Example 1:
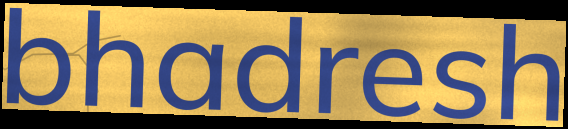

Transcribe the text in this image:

bhadresh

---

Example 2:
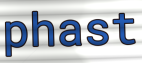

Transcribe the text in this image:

phast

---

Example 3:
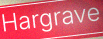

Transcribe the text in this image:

Hargrave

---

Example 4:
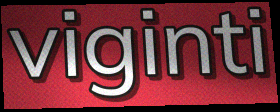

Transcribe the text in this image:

viginti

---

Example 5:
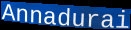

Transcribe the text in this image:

Annadurai